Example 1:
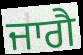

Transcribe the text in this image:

ਜਾਗੈ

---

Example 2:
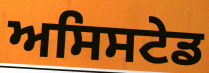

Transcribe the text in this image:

ਅਸਿਸਟੇਡ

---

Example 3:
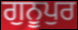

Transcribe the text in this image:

ਗੁਨੂਪੁਰ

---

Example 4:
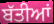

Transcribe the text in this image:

ਬੱਤੀਆਂ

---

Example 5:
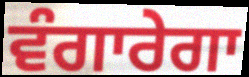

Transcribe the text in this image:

ਵੰਗਾਰੇਗਾ